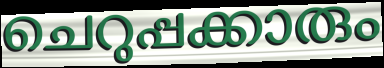
ചെറുപ്പക്കാരും